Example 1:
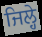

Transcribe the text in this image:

ਜਿਲ੍ਹੇ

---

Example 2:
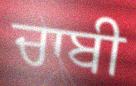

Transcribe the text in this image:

ਚਾਬੀ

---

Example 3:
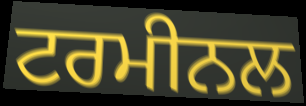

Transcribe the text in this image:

ਟਰਮੀਨਲ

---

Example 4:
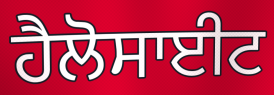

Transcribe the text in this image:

ਹੈਲੋਸਾਈਟ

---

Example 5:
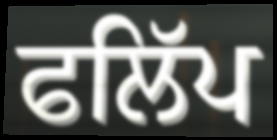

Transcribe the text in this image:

ਫਲਿੱਪ